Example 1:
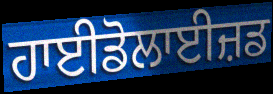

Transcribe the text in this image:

ਹਾਈਡੋਲਾਈਜ਼ਡ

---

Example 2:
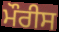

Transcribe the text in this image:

ਮੌਰੀਸ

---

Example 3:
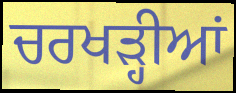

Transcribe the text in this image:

ਚਰਖੜ੍ਹੀਆਂ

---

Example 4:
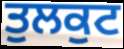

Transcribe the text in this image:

ਤੁਲਕੁਟ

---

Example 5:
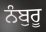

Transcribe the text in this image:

ਨੰਬੁਰੂ